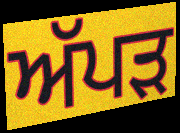
ਅੱਪੜ